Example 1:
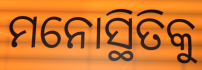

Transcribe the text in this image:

ମନୋସ୍ଥିତିକୁ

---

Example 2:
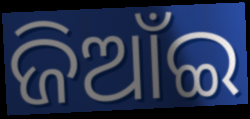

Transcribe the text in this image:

ଜିଆଁଇ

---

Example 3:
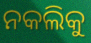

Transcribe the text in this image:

ନକଲିକୁ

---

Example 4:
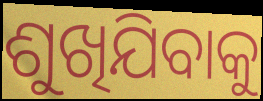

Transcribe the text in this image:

ଶୁଖିଯିବାକୁ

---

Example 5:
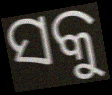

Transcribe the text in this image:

ସକୁ